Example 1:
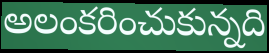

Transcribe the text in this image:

అలంకరించుకున్నది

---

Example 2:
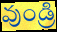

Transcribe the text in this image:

వుండ్రి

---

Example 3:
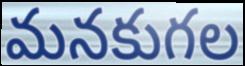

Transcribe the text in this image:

మనకుగల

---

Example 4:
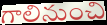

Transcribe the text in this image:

గాలినుంచి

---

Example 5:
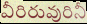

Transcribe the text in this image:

వీరిరువురినీ